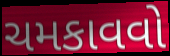
ચમકાવવો